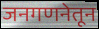
जनगणनेतून